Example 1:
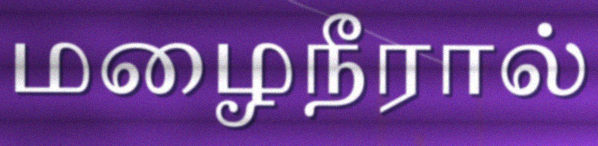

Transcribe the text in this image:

மழைநீரால்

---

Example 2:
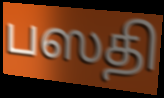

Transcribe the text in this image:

பஸதி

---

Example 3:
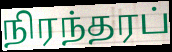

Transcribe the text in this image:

நிரந்தரப்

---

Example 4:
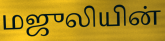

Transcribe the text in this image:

மஜுலியின்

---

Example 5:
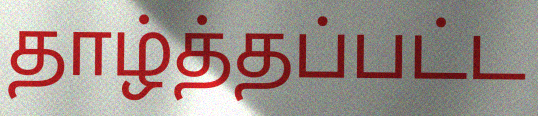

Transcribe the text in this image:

தாழ்த்தப்பட்ட